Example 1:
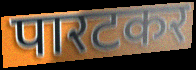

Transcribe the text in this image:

पारटकर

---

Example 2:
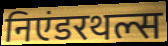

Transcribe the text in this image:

निएंडरथल्स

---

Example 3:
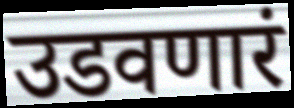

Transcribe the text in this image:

उडवणारं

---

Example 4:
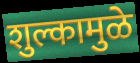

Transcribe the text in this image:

शुल्कामुळे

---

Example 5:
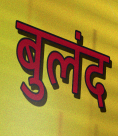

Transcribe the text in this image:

बुलंद